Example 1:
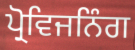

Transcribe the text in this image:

ਪ੍ਰੋਵਿਜਨਿੰਗ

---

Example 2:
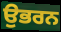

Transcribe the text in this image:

ਉਭਰਨ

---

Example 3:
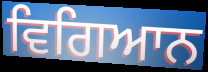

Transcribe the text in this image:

ਵਿਗਿਆਨ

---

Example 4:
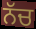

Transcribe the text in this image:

ਨੱਚ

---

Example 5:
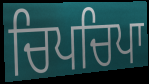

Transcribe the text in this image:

ਚਿਪਚਿਪਾ